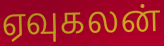
ஏவுகலன்